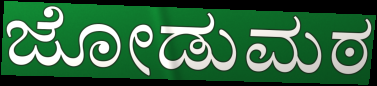
ಜೋಡುಮಠ